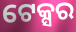
ଟେକ୍ସର